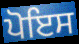
ਪੋਇਸ